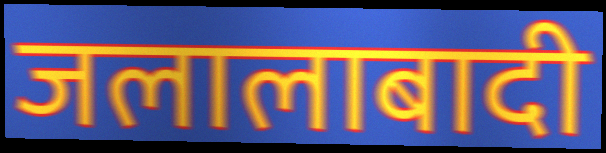
जलालाबादी